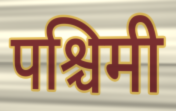
पश्चिमी